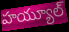
హయ్యూల్